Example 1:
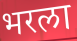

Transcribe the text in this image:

भरला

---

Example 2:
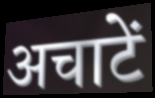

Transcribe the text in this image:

अचाटें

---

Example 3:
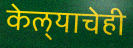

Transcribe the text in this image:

केल्याचेही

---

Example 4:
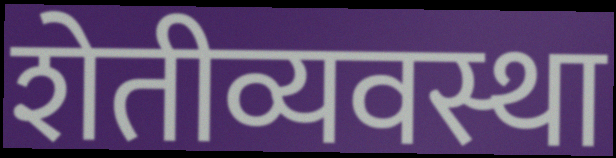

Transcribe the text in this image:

शेतीव्यवस्था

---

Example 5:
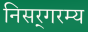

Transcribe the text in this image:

निसर्गरम्य